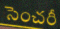
సెంచరీ